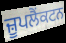
ਜ਼ੂਪਲੈਂਕਟਨ